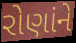
રોણાંને